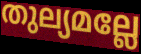
തുല്യമല്ലേ